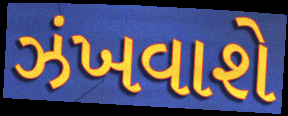
ઝંખવાશે